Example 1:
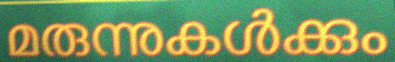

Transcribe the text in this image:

മരുന്നുകൾക്കും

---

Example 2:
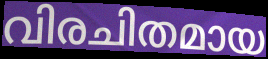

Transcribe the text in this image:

വിരചിതമായ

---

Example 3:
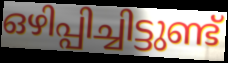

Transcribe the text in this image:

ഒഴിപ്പിച്ചിട്ടുണ്ട്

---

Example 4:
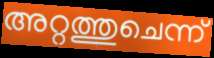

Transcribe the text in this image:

അറ്റത്തുചെന്ന്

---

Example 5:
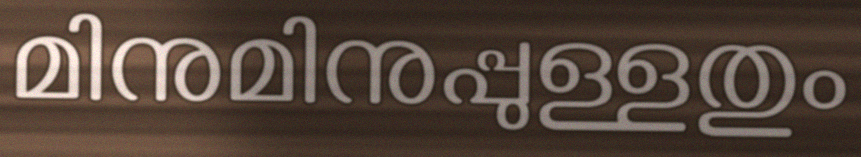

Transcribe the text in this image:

മിനുമിനുപ്പുള്ളതും